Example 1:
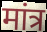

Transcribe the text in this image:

मांत्र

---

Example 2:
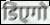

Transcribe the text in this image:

डिएगो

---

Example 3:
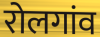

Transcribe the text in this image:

रोलगांव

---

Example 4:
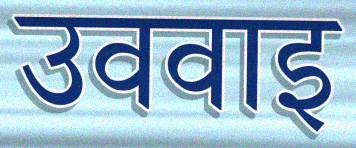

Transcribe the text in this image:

उववाइ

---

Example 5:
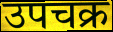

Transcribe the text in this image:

उपचक्र